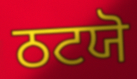
ਠਟਯੋ